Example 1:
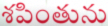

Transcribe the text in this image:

శపింతును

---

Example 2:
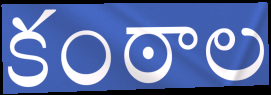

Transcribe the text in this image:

కంఠాల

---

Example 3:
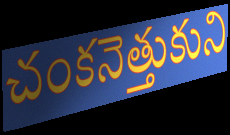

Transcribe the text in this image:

చంకనెత్తుకుని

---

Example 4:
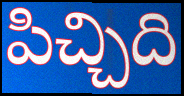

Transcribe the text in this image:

పిచ్చిది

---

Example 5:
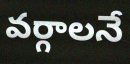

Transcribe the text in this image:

వర్గాలనే